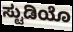
ಸ್ಟುಡಿಯೊ